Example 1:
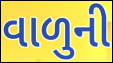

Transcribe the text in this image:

વાળુની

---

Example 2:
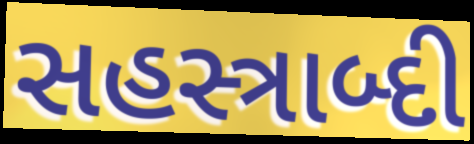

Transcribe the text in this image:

સહસ્ત્રાબ્દી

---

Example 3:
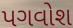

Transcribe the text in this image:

પગવોશ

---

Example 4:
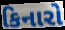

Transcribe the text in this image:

કિનારો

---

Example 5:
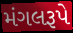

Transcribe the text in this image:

મંગલરૂપે